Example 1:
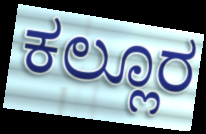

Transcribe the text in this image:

ಕಲ್ಲೂರ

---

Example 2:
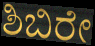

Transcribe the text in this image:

ಶಿಬಿರೇ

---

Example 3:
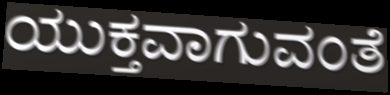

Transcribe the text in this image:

ಯುಕ್ತವಾಗುವಂತೆ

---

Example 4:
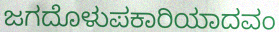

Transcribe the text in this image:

ಜಗದೊಳುಪಕಾರಿಯಾದವಂ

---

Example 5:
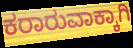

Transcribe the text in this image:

ಕರಾರುವಾಕ್ಕಾಗಿ